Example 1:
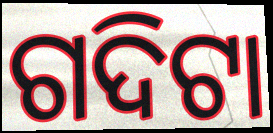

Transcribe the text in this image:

ଗଦିଟା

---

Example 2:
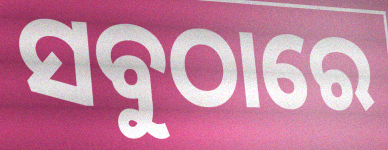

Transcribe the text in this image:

ସବୁଠାରେ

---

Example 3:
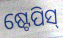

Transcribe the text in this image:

ଷ୍ଟେପିସ୍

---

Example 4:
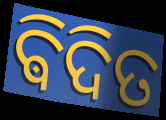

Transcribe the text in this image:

ଵିଦିତ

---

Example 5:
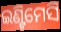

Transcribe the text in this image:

ଇଣ୍ଟିମେସି